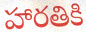
హారతికి